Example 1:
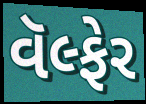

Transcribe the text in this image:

વૅલ્ફેર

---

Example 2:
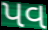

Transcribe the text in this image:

પવ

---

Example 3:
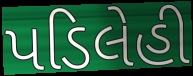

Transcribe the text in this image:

પડિલેહી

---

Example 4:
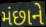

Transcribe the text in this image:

મંછાને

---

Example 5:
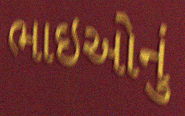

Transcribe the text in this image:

ભાઇઓનું